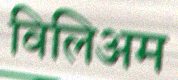
विलिअम